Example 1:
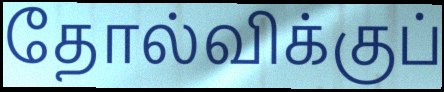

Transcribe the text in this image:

தோல்விக்குப்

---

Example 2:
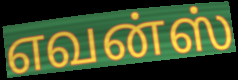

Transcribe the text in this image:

எவன்ஸ்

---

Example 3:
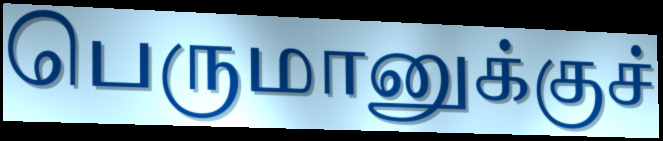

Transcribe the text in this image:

பெருமானுக்குச்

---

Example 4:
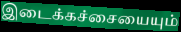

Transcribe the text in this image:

இடைக்கச்சையையும்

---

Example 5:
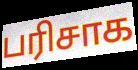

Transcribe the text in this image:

பரிசாக